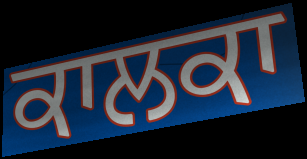
ਕਾਲਕਾ